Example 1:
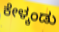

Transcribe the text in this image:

ಕೇಳ್ಕಂಡು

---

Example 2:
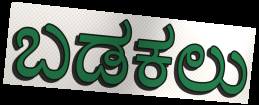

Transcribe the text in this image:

ಬಡಕಲು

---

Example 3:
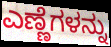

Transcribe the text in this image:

ಎಣ್ಣೆಗಳನ್ನು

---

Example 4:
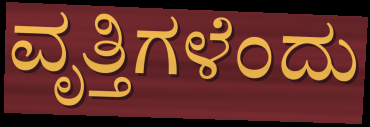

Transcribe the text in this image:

ವೃತ್ತಿಗಳೆಂದು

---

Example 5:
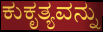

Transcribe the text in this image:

ಕುಕೃತ್ಯವನ್ನು